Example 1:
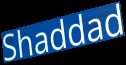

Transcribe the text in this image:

Shaddad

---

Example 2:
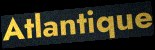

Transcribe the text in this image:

Atlantique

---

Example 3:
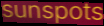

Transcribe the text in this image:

sunspots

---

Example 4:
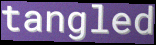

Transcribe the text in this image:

tangled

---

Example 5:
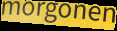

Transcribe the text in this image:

morgonen